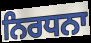
ਨਿਰਧਨਾ